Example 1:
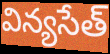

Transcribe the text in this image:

విన్యసేత్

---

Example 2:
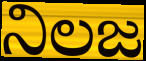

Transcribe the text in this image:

నిలజ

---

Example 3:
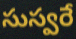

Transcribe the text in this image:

సుస్వరే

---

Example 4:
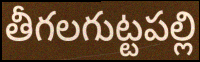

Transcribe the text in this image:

తీగలగుట్టపల్లి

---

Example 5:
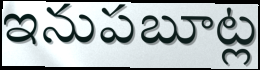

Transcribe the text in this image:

ఇనుపబూట్ల